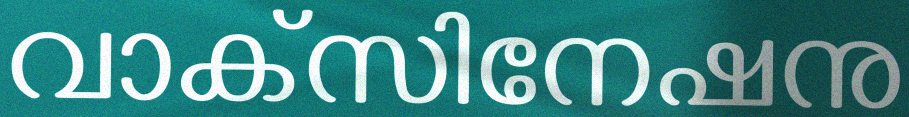
വാക്‌സിനേഷനു